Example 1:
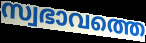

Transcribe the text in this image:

സ്വഭാവത്തെ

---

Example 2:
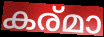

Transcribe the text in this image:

കര്മാ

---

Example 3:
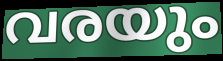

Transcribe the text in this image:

വരയും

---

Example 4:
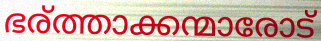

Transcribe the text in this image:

ഭര്ത്താക്കന്മാരോട്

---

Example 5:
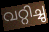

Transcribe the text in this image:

വറ്റിച്ചു